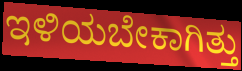
ಇಳಿಯಬೇಕಾಗಿತ್ತು